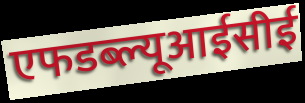
एफडब्ल्यूआईसीई